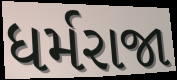
ધર્મરાજા